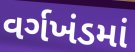
વર્ગખંડમાં